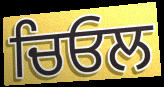
ਚਿਓਲ